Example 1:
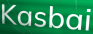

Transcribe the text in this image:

Kasbai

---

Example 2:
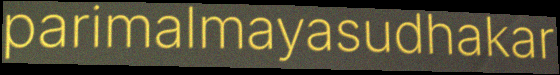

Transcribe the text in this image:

parimalmayasudhakar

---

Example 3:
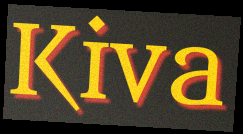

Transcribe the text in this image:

Kiva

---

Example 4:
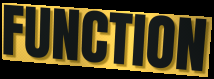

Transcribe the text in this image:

FUNCTION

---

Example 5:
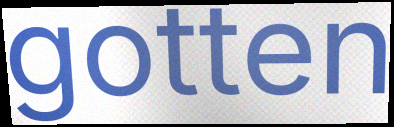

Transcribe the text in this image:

gotten